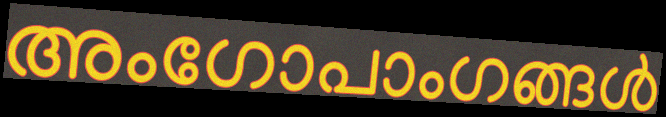
അംഗോപാംഗങ്ങൾ